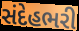
સંદેહભરી